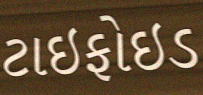
ટાઇફોઇડ